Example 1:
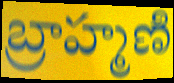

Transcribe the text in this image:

బ్రాహ్మణి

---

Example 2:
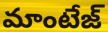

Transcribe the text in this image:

మాంటేజ్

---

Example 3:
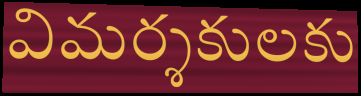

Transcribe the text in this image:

విమర్శకులకు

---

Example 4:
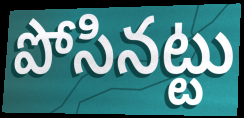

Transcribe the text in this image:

పోసినట్టు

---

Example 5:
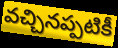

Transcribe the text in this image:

వచ్చినప్పటికీ